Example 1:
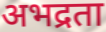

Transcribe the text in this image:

अभद्रता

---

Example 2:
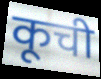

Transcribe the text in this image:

कूची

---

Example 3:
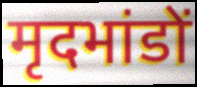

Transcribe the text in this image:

मृदभांडों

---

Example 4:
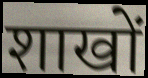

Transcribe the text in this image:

शाखों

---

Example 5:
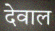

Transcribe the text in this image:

देवाल